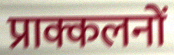
प्राक्कलनों